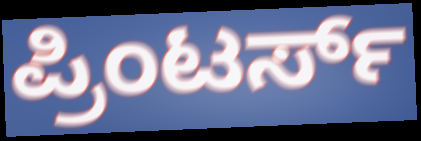
ಪ್ರಿಂಟರ್ಸ್